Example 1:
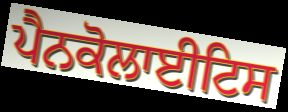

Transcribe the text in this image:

ਪੈਨਕੋਲਾਈਟਿਸ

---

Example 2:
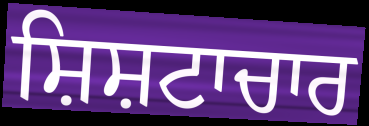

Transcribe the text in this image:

ਸ਼ਿਸ਼ਟਾਚਾਰ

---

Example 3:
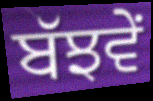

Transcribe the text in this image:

ਬੱਝਵੇਂ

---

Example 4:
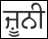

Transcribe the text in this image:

ਜ਼ੂਨੀ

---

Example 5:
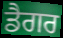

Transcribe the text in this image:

ਡੈਗਰ